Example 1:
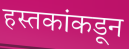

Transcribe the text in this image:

हस्तकांकडून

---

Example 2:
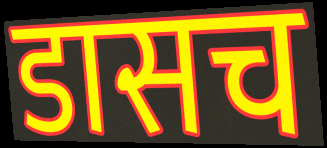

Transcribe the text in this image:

डासच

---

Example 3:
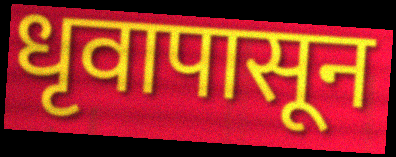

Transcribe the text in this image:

धृवापासून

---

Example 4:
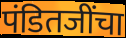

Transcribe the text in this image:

पंडितजींचा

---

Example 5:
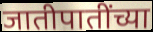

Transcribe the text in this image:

जातीपातींच्या